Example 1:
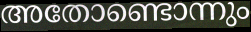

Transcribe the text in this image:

അതോണ്ടൊന്നും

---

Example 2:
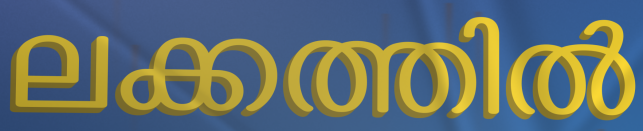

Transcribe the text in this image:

ലക്കത്തിൽ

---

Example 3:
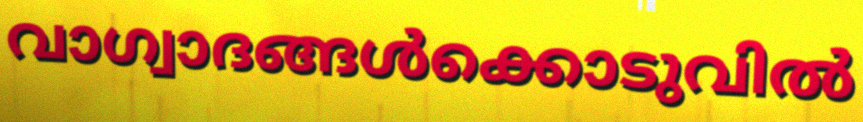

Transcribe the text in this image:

വാഗ്വാദങ്ങൾക്കൊടുവിൽ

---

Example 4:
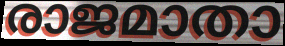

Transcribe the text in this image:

രാജമാതാ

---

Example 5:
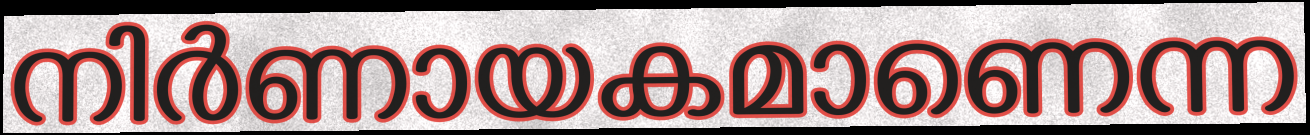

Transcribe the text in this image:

നിർണായകമാണെന്ന